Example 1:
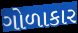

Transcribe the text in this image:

ગોળાકાર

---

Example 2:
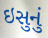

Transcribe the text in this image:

ઇસુનું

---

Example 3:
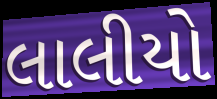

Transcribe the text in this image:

લાલીયો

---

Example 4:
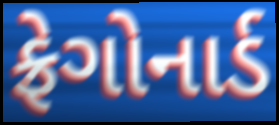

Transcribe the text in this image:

ફ્રેગોનાર્ડ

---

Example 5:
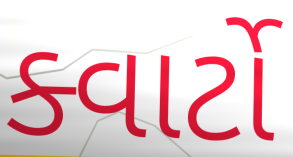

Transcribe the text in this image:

ક્વાર્ટો